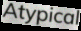
Atypical